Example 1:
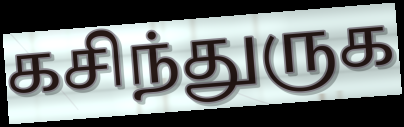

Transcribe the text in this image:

கசிந்துருக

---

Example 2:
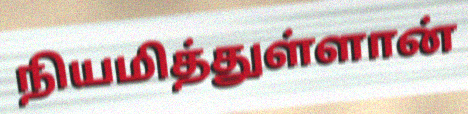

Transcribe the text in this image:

நியமித்துள்ளான்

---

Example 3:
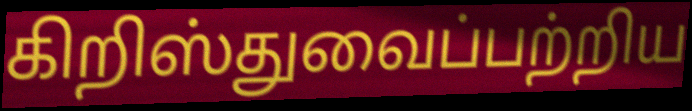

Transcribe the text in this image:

கிறிஸ்துவைப்பற்றிய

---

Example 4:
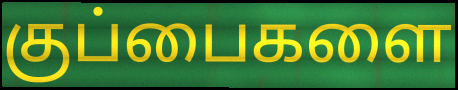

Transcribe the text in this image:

குப்பைகளை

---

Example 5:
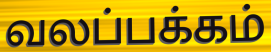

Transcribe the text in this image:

வலப்பக்கம்